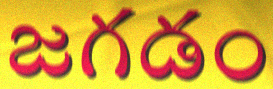
జగడం